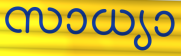
സാധ്യാ